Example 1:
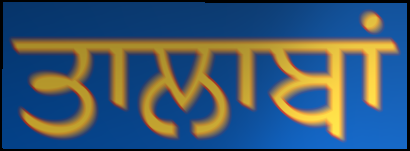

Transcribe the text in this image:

ਤਾਲਾਬਾਂ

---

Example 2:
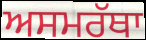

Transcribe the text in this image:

ਅਸਮਰੱਥਾ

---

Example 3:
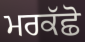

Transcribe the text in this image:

ਮਰਕੱਛੋ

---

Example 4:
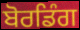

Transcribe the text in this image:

ਬੋਰਡਿੰਗ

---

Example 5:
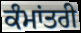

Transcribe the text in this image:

ਕੰਮਾਂਤਰੀ